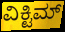
ವಿಕ್ಟಿಮ್